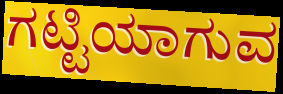
ಗಟ್ಟಿಯಾಗುವ